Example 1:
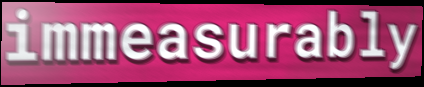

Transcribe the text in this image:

immeasurably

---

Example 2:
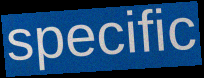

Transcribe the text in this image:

specific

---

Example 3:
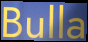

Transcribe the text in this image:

Bulla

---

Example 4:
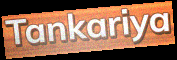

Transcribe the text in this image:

Tankariya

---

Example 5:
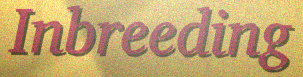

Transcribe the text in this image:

Inbreeding